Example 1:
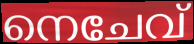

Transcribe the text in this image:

നെചേവ്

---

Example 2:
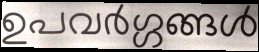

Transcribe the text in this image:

ഉപവർഗ്ഗങ്ങൾ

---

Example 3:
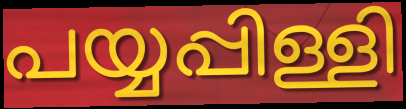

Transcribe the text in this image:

പയ്യപ്പിള്ളി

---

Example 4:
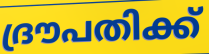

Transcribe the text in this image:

ദ്രൗപതിക്ക്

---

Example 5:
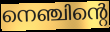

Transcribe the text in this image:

നെഞ്ചിന്റെ